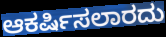
ಆಕರ್ಷಿಸಲಾರದು